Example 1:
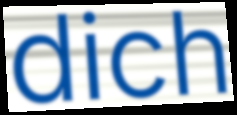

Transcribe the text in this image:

dich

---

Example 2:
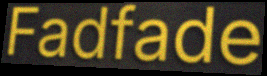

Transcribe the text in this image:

Fadfade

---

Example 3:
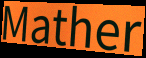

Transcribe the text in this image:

Mather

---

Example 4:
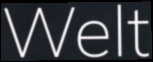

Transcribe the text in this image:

Welt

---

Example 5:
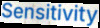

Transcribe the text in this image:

Sensitivity